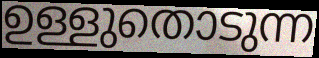
ഉള്ളുതൊടുന്ന